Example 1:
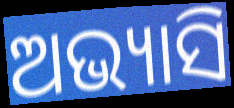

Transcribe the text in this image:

ଅଭ୍ୟାସି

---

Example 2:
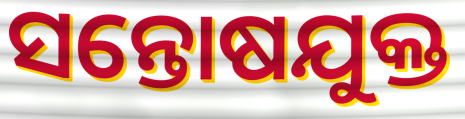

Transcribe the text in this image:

ସନ୍ତୋଷଯୁକ୍ତ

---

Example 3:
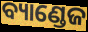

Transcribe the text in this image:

ବ୍ୟାଣ୍ଡେଜ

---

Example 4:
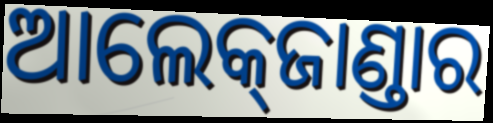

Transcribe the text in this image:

ଆଲେକ୍‌ଜାଣ୍ଡାର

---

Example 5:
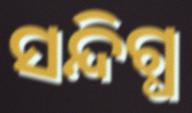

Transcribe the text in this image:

ସନ୍ଦିଗ୍ଧ